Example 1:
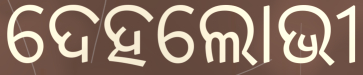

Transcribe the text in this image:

ଦେହଲୋଭୀ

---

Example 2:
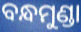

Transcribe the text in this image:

ବନ୍ଧମୁଣ୍ଡା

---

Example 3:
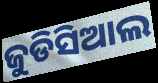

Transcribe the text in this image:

ଜୁଡିସିଆଲ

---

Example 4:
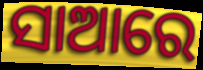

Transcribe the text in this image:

ସାଆରେ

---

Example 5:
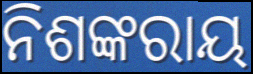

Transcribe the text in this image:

ନିଶଙ୍କରାୟ